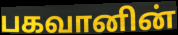
பகவானின்